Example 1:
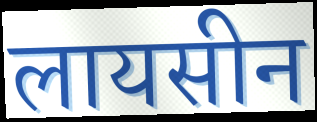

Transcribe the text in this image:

लायसीन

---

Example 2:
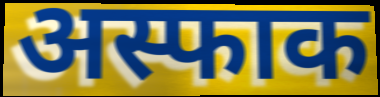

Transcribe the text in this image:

अस्फाक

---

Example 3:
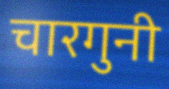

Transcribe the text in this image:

चारगुनी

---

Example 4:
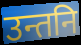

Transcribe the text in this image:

उन्तनि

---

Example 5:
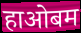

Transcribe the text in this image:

हाओबम